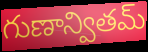
గుణాన్వితమ్